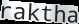
raktha